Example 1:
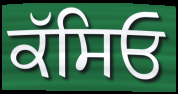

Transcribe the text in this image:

ਕੱਸਿਓ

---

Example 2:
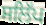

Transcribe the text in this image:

ਸਲਿੱਪ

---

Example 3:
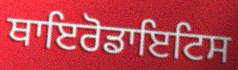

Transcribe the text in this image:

ਥਾਇਰੋਡਾਇਟਿਸ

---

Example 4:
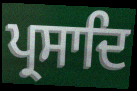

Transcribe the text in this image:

ਪ੍ਰਸਾਦਿ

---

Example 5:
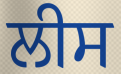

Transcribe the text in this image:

ਲੀਸ